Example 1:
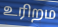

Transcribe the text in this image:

உரிறம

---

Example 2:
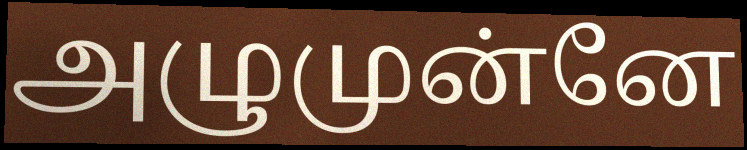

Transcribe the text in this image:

அழுமுன்னே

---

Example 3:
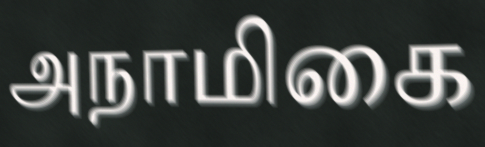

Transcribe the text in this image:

அநாமிகை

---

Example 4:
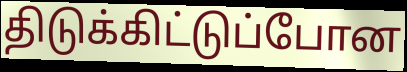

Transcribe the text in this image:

திடுக்கிட்டுப்போன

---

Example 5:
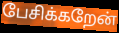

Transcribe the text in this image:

பேசிக்கறேன்